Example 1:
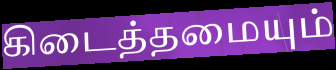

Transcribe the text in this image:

கிடைத்தமையும்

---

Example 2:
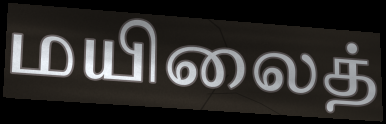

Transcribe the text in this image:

மயிலைத்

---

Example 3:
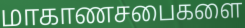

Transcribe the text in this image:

மாகாணசபைகளை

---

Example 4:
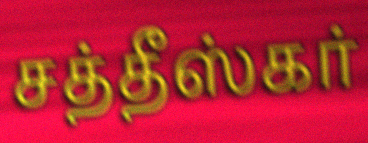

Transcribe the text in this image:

சத்தீஸ்கர்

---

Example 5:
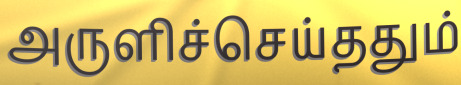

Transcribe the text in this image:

அருளிச்செய்ததும்